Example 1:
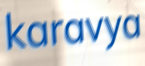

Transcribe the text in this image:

karavya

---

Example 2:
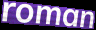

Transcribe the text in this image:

roman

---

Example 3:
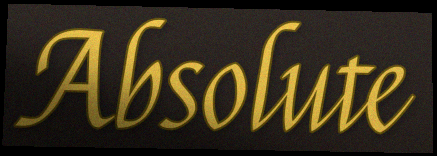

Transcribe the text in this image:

Absolute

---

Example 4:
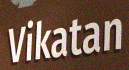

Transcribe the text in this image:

Vikatan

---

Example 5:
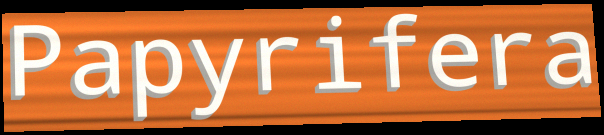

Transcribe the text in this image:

Papyrifera